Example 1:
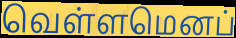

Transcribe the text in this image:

வெள்ளமெனப்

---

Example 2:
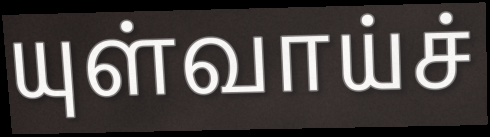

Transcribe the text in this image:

யுள்வாய்ச்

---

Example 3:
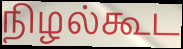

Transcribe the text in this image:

நிழல்கூட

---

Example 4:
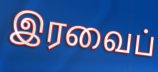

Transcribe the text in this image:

இரவைப்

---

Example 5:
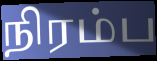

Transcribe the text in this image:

நிரம்ப